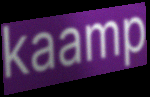
kaamp